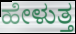
ಹೇಳುತ್ತ